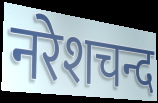
नरेशचन्द